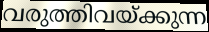
വരുത്തിവയ്ക്കുന്ന